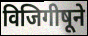
विजिगीषूने